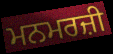
ਮਨਮਰਜ਼ੀ